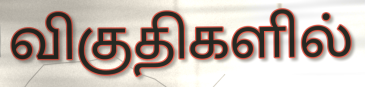
விகுதிகளில்